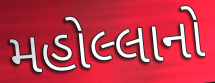
મહોલ્લાનો